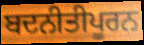
ਬਦਨੀਤੀਪੂਰਨ